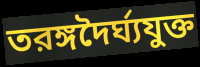
তরঙ্গদৈর্ঘ্যযুক্ত